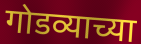
गोडव्याच्या